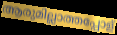
ആരുമില്ലാത്തപ്പോള്